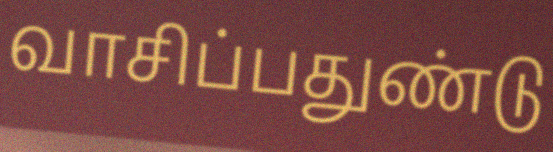
வாசிப்பதுண்டு